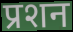
प्रशन